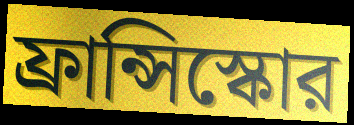
ফ্রান্সিস্কোর